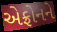
એફ્રોનને